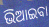
ଭିଆଇବା